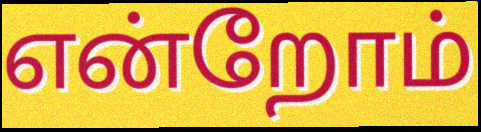
என்றோம்